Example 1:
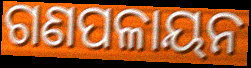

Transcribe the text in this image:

ଗଣପଳାୟନ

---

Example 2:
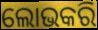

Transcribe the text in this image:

ଲୋଭକରି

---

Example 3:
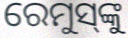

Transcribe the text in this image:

ରେମୁସ୍‌ଙ୍କୁ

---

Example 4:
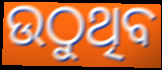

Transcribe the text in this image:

ଉଠୁଥିବ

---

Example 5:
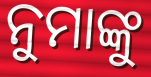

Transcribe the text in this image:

ନୁମାଙ୍କୁ